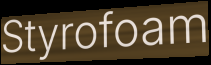
Styrofoam